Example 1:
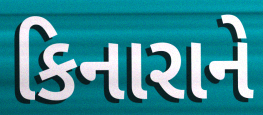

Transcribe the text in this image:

કિનારાને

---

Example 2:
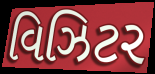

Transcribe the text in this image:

વિઝિટર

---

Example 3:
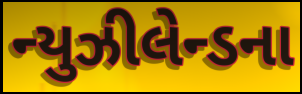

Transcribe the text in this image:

ન્યુઝીલેન્ડના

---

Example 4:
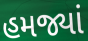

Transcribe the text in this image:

હમજ્યાં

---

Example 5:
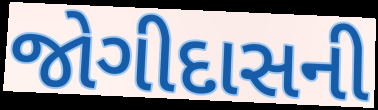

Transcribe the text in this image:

જોગીદાસની